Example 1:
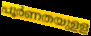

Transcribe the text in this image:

പൂർണതയുളള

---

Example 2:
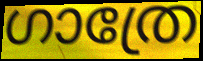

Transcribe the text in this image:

ഗാത്രേ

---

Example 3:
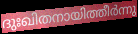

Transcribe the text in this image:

ദുഃഖിതനായിത്തീർന്നു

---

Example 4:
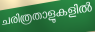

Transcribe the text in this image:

ചരിത്രതാളുകളിൽ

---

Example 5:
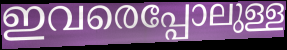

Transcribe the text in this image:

ഇവരെപ്പോലുള്ള